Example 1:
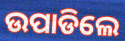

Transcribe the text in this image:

ଉପାଡିଲେ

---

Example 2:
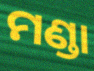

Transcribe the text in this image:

ମଣ୍ଡା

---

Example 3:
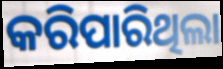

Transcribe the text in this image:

କରିପାରିଥିଲା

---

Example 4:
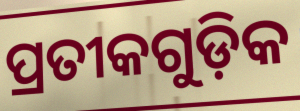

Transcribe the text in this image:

ପ୍ରତୀକଗୁଡ଼ିକ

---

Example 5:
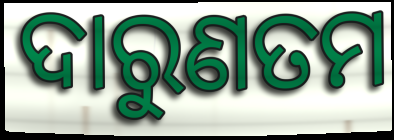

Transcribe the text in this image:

ଦାରୁଣତମ